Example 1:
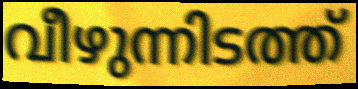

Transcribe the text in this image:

വീഴുന്നിടത്ത്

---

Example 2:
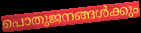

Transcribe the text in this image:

പൊതുജനങ്ങൾക്കും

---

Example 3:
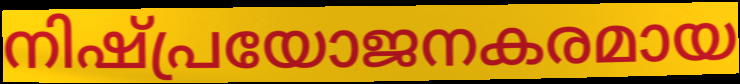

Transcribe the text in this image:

നിഷ്പ്രയോജനകരമായ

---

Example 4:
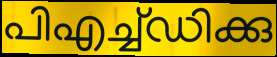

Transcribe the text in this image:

പിഎച്ച്ഡിക്കു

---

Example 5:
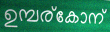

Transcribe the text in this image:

ഉമ്പര്കോന്